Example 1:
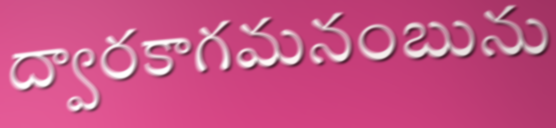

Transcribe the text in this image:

ద్వారకాగమనంబును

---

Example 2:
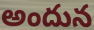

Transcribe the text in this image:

అందున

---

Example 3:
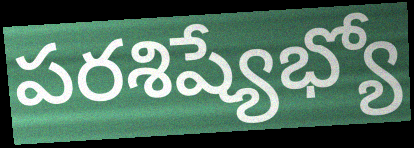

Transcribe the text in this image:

పరశిష్యేభ్యో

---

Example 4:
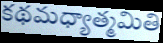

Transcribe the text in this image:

కథమధ్యాత్మమితి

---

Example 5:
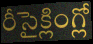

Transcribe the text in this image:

రీసైక్లింగ్లో